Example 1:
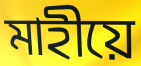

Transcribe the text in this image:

মাহীয়ে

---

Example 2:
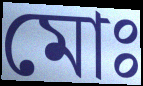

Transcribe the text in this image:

মোঃ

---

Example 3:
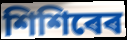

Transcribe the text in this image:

শিশিৰেৰ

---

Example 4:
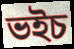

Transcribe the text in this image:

ভইচ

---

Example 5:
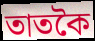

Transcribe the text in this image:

তাতকৈ